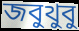
জবুথুবু